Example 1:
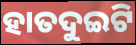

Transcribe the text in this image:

ହାତଦୁଇଟି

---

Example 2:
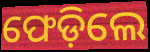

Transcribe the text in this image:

ଫେଡ଼ିଲେ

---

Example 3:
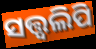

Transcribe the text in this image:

ସତ୍ତ୍ୱଲିପି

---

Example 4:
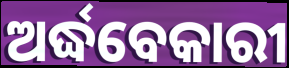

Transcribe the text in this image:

ଅର୍ଦ୍ଧବେକାରୀ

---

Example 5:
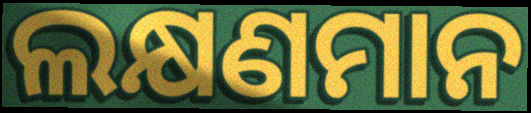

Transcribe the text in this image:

ଲକ୍ଷଣମାନ